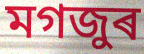
মগজুৰ